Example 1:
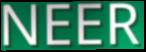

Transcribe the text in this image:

NEER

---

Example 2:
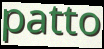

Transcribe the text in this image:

patto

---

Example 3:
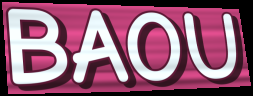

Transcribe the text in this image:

BAOU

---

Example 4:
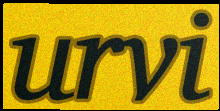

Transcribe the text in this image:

urvi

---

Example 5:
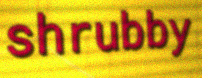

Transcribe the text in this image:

shrubby